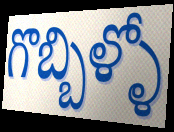
గొబ్బిళ్ళో